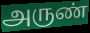
அருண்